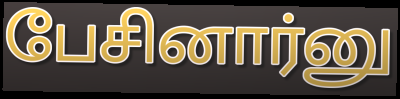
பேசினார்னு